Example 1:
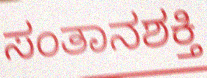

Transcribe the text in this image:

ಸಂತಾನಶಕ್ತಿ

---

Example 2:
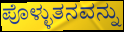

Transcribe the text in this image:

ಪೊಳ್ಳುತನವನ್ನು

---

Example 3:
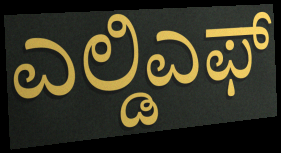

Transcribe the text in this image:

ಎಲ್ಡಿಎಫ್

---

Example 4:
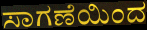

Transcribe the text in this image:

ಸಾಗಣೆಯಿಂದ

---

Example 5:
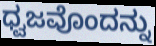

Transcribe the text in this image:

ಧ್ವಜವೊಂದನ್ನು